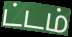
ட்டம்